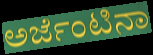
ಅರ್ಜೆಂಟಿನಾ